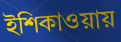
ইশিকাওয়ায়